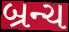
બ્રન્ચ